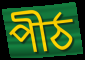
পীঠ